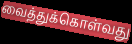
வைத்துக்கொள்வது